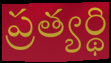
ప్రత్యర్థి